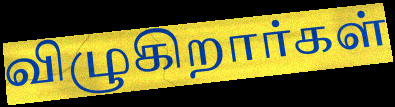
விழுகிறார்கள்